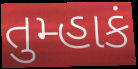
તુમ્હાકં